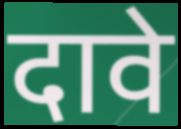
दावे